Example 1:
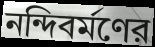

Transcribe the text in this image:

নন্দিবর্মণের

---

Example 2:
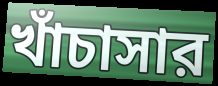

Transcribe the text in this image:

খাঁচাসার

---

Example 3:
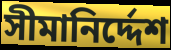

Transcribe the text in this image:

সীমানির্দ্দেশ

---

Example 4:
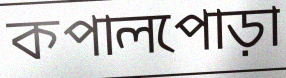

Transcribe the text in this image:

কপালপোড়া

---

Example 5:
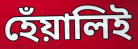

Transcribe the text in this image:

হেঁয়ালিই